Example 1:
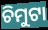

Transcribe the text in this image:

ଚିମୁଟା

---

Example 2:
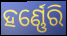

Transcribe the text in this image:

ହର୍ଣ୍ଣେରି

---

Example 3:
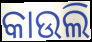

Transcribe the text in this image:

କାଉଲି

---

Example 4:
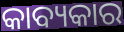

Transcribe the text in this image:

କାବ୍ୟକାର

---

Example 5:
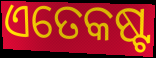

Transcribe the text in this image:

ଏତେକଷ୍ଟ